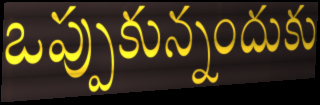
ఒప్పుకున్నందుకు